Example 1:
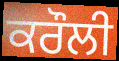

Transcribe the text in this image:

ਕਰੌਲੀ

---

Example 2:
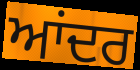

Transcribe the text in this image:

ਆਂਦਰ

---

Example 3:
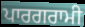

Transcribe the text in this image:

ਪਾਰਗਰਾਮੀ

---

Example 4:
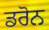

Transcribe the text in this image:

ਡਰੋਨ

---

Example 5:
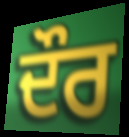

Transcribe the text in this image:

ਦੌਰ